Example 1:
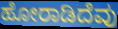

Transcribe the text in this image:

ಹೋರಾಡಿದೆವು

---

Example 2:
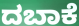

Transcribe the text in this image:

ದಬಾಕೆ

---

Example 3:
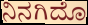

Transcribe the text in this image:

ನಿನಗಿದೊ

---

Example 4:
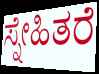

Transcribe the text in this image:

ಸ್ನೇಹಿತರೆ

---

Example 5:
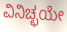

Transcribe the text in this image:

ವಿನಿಚ್ಛಯೇ